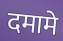
दमामे